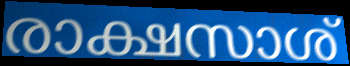
രാക്ഷസാശ്